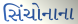
સિંચોનાના